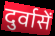
दुर्वासें